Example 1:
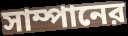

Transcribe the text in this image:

সাম্পানের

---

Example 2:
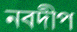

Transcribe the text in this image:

নবদীপ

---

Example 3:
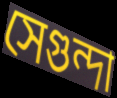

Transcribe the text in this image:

সেগুন্দা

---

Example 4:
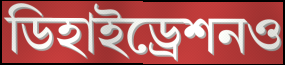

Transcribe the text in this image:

ডিহাইড্রেশনও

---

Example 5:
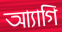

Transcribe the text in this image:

আ্যাগি